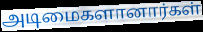
அடிமைகளானார்கள்